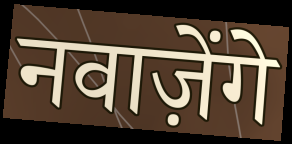
नवाज़ेंगे